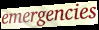
emergencies